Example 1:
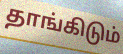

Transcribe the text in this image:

தாங்கிடும்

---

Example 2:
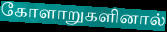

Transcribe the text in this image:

கோளாறுகளினால்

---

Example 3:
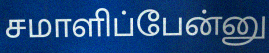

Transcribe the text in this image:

சமாளிப்பேன்னு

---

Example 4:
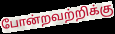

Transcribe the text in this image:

போன்றவற்றிக்கு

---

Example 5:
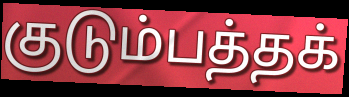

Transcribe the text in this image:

குடும்பத்தக்